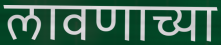
लावणाच्या